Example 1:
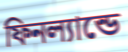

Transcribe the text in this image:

ফিনল্যান্ডে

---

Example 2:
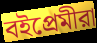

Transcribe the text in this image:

বইপ্রেমীরা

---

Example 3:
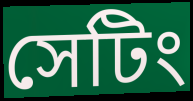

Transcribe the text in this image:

সেটিং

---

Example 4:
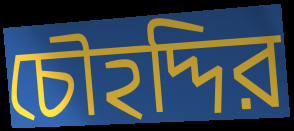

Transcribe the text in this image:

চৌহদ্দির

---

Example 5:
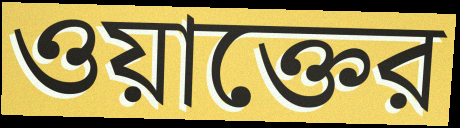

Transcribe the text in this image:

ওয়াক্তের